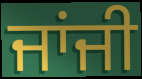
ਜਾਂਜੀ